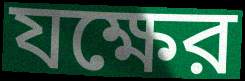
যক্ষের